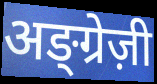
अङ्ग्रेज़ी